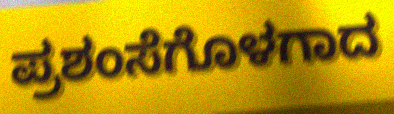
ಪ್ರಶಂಸೆಗೊಳಗಾದ